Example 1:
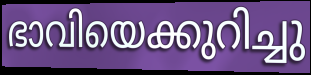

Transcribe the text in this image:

ഭാവിയെക്കുറിച്ചു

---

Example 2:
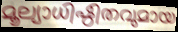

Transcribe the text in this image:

മൂല്യാധിഷ്ഠിതവുമായ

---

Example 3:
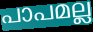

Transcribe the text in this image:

പാപമല്ല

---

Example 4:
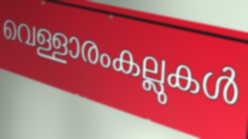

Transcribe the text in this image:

വെള്ളാരംകല്ലുകൾ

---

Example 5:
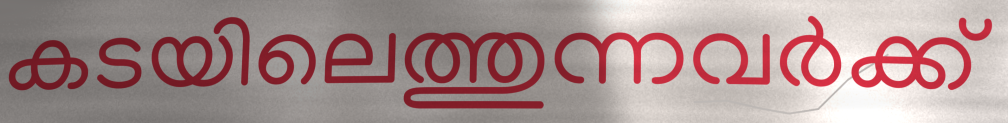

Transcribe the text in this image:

കടയിലെത്തുന്നവർക്ക്